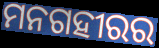
ମନଗହୀରର